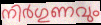
നിർഗുണവും